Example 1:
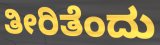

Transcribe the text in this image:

ತೀರಿತೆಂದು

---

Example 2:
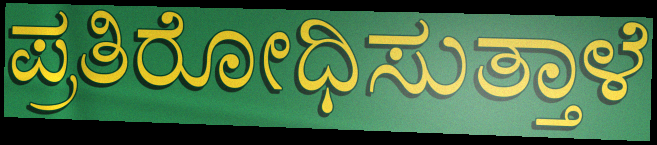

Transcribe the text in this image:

ಪ್ರತಿರೋಧಿಸುತ್ತಾಳೆ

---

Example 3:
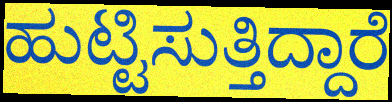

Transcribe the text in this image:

ಹುಟ್ಟಿಸುತ್ತಿದ್ದಾರೆ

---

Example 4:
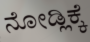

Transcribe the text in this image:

ನೋಡ್ಲಿಕ್ಕೆ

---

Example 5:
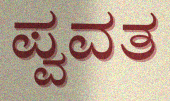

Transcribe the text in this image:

ಪ್ವವತ